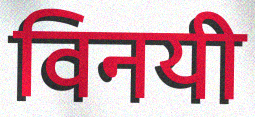
विनयी